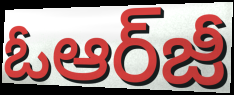
ఓఆర్‌జీ